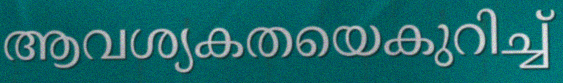
ആവശ്യകതയെകുറിച്ച്